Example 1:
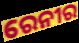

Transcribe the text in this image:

ରେନୀର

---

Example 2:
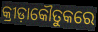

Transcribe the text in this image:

କ୍ରୀଡ଼ାକୌତୁକରେ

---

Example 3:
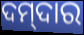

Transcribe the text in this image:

ଦମ୍‌ଦାର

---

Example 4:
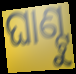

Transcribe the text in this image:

ଘାଣ୍ଟୁ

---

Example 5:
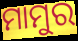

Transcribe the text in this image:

ମାମୁର